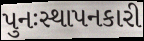
પુનઃસ્થાપનકારી